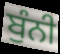
ਬੁੰਨੀ